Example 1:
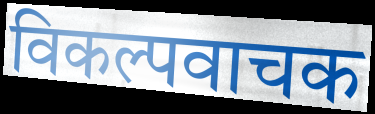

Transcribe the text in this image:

विकल्पवाचक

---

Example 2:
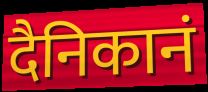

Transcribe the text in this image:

दैनिकानं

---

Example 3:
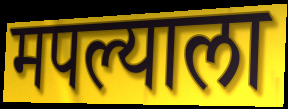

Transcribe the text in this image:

मपल्याला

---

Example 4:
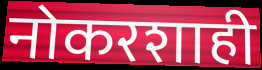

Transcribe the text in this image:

नोकरशाही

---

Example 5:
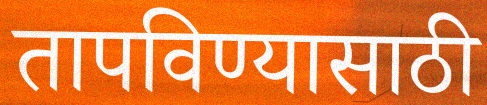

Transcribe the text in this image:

तापविण्यासाठी